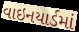
વાઇનયાર્ડમાં